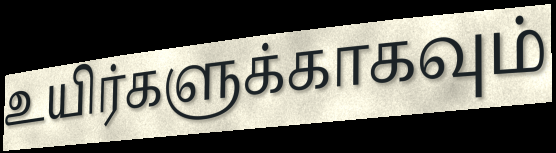
உயிர்களுக்காகவும்